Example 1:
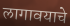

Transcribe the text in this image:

लागावयाचे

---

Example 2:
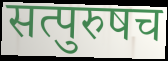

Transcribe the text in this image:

सत्पुरुषच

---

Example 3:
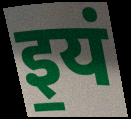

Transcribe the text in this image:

इ॒यं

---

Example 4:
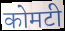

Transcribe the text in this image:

कोमटी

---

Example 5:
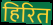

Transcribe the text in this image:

हिरित